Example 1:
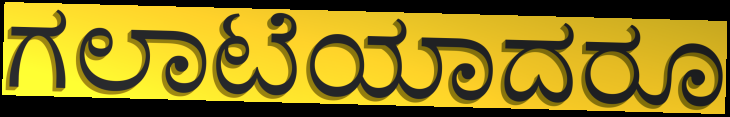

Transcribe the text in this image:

ಗಲಾಟೆಯಾದರೂ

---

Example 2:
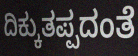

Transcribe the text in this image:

ದಿಕ್ಕುತಪ್ಪದಂತೆ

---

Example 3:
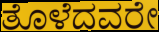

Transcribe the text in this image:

ತೊಳೆದವರೇ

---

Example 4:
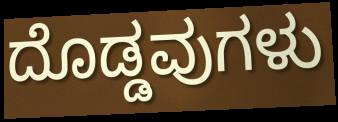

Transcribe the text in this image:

ದೊಡ್ಡವುಗಳು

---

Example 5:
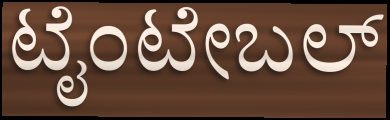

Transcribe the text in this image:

ಟೈಂಟೇಬಲ್